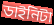
ডাইনিটা